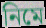
নিমে